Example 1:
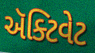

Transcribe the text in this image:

ઍક્ટિવેટ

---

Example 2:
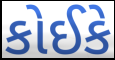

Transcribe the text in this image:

કોઈકે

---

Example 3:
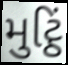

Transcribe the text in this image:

મુટ્ઠિં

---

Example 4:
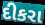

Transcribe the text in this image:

દીકરા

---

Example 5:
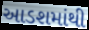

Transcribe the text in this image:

આડશમાંથી